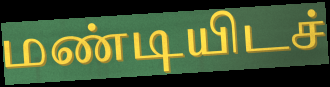
மண்டியிடச்